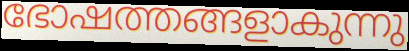
ഭോഷത്തങ്ങളാകുന്നു